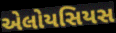
એલોયસિયસ